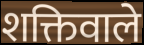
शक्तिवाले